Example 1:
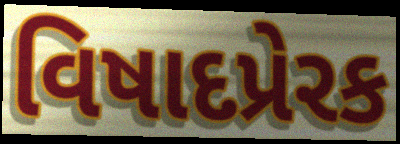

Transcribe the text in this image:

વિષાદપ્રેરક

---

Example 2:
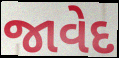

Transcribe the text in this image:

જાવેદ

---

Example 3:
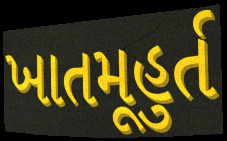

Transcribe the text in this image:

ખાતમૂહુર્ત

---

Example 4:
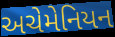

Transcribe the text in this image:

અચેમેનિયન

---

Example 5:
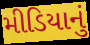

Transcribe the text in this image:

મીડિયાનું